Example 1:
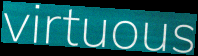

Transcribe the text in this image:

virtuous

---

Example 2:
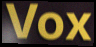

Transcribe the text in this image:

Vox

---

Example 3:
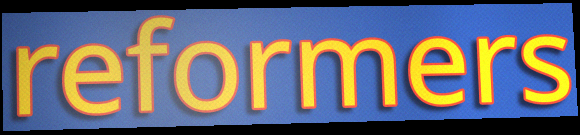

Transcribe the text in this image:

reformers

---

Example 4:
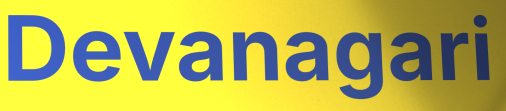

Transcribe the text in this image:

Devanagari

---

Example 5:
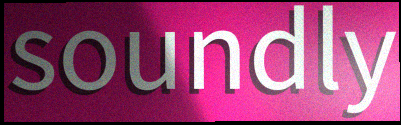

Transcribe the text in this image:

soundly